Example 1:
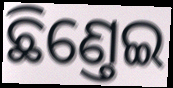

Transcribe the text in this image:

ଛିଣ୍ତେଇ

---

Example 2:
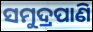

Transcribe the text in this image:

ସମୁଦ୍ରପାଣି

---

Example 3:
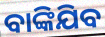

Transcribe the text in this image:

ବାଙ୍କିଯିବ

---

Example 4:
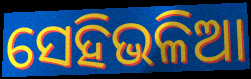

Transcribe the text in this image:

ସେହିଭଳିଆ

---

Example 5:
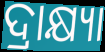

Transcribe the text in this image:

ଦ୍ରାକ୍ଷ୍ୟା